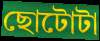
ছোটোটা